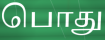
பொது